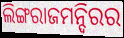
ଲିଙ୍ଗରାଜମନ୍ଦିରର